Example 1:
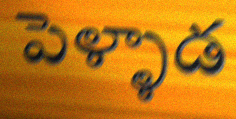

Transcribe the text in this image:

పెళ్ళాడ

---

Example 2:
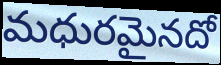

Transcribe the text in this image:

మధురమైనదో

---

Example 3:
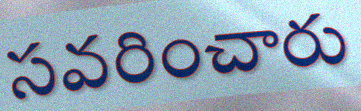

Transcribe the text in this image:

సవరించారు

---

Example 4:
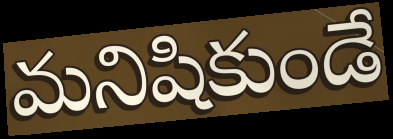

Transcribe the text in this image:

మనిషికుండే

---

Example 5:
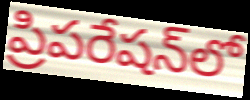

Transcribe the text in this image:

ప్రిపరేషన్‌లో